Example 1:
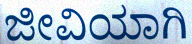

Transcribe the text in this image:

ಜೀವಿಯಾಗಿ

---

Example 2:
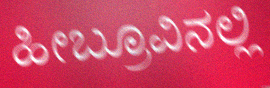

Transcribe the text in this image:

ಹೀಬ್ರೂವಿನಲ್ಲಿ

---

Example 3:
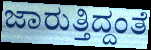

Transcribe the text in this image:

ಜಾರುತ್ತಿದ್ದಂತೆ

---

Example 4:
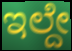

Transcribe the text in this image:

ಇಲ್ದೇ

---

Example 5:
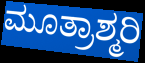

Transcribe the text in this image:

ಮೂತ್ರಾಶ್ಮರಿ